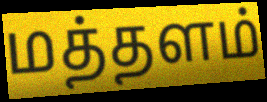
மத்தளம்